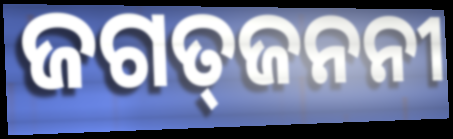
ଜଗତ୍‍ଜନନୀ